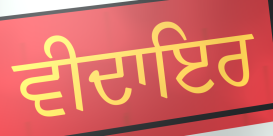
ਵੀਦਾਇਰ